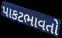
પાકટભાવતો